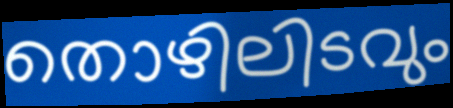
തൊഴിലിടവും